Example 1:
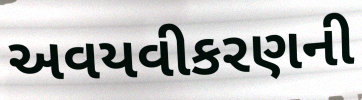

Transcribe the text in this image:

અવયવીકરણની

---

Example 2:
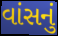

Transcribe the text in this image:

વાંસનું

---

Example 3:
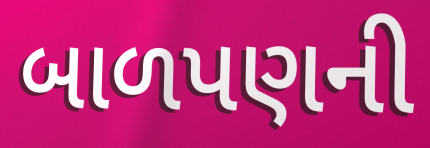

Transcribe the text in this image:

બાળપણની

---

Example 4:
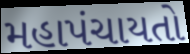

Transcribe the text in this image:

મહાપંચાયતો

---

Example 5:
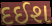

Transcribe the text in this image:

દઈશ